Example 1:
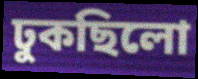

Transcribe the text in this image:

ঢুকছিলো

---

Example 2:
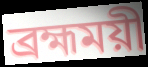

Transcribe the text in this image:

ব্রহ্মময়ী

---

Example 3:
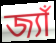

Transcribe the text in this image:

জ্যাঁ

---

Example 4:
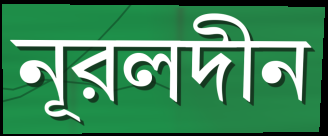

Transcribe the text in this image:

নূরলদীন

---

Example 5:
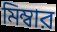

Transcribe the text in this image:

মিম্বার